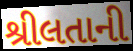
શ્રીલતાની